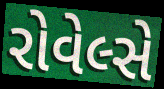
રોવેલ્સે